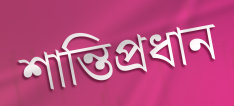
শান্তিপ্রধান